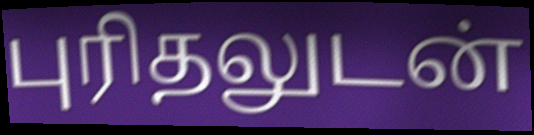
புரிதலுடன்